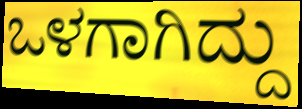
ಒಳಗಾಗಿದ್ದು